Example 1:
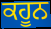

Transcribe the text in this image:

ਕਹੂਨ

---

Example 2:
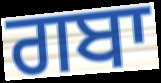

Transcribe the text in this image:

ਗਬਾ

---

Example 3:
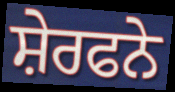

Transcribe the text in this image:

ਸ਼ੇਰਫਨੇ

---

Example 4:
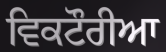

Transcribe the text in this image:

ਵਿਕਟੌਰੀਆ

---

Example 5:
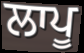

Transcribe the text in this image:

ਲਾਪੂ